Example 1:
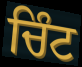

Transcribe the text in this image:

ਚਿੰਟ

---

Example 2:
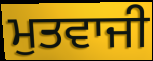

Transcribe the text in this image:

ਮੁਤਵਾਜੀ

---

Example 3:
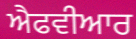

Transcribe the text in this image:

ਐਫਵੀਆਰ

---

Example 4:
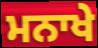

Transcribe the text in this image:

ਮਨਾਖੇ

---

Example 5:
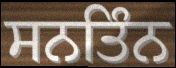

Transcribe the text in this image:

ਸਨਤਿੰਨ